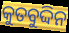
କୁତବୁଦ୍ଦିନ